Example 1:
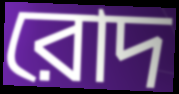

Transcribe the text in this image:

রোদ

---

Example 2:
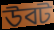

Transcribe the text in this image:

উবট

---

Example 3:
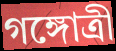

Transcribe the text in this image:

গঙ্গোত্রী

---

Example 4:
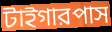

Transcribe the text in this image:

টাইগারপাস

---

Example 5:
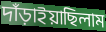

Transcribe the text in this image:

দাঁড়াইয়াছিলাম